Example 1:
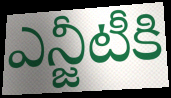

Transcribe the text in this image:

ఎన్జీటీకి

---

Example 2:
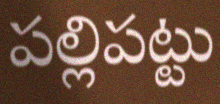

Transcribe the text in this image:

పల్లిపట్టు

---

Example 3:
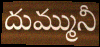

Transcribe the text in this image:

దుమ్మునీ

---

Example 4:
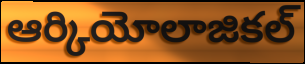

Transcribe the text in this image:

ఆర్కియోలాజికల్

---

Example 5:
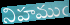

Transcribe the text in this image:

నిహముఁ